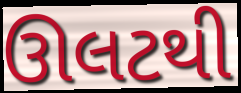
ઊલટથી